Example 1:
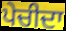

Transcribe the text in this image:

ਪੇਚੀਦਾ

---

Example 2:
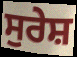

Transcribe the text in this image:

ਸੁਰੇਸ਼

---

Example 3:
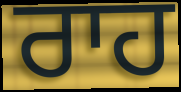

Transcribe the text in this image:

ਰਾਹ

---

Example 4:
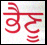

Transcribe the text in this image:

ਭੈਣੂ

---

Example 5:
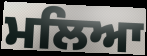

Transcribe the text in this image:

ਮਲਿਆ